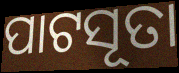
ପାଟସୂତା